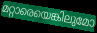
മറ്റാരെയെങ്കിലുമോ